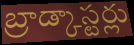
బ్రాడ్కాస్టర్లు